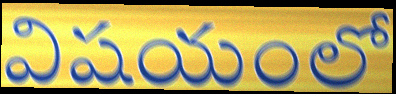
విషయంలో